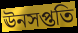
ঊনসপ্ততি